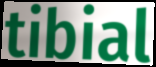
tibial